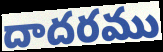
దాదరము